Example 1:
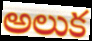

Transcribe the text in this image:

అలుక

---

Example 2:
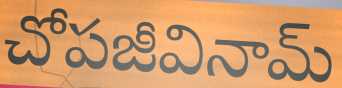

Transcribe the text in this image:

చోపజీవినామ్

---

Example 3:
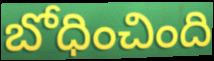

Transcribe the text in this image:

బోధించింది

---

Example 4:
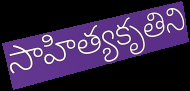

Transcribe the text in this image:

సాహిత్యకృతిని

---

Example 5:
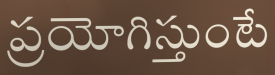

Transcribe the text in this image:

ప్రయోగిస్తుంటే